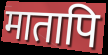
मातापि